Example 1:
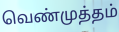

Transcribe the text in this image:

வெண்முத்தம்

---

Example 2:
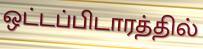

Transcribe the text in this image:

ஒட்டப்பிடாரத்தில்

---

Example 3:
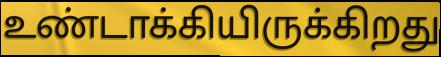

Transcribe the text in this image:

உண்டாக்கியிருக்கிறது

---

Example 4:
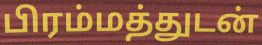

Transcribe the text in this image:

பிரம்மத்துடன்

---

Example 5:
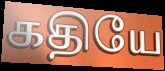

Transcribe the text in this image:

கதியே